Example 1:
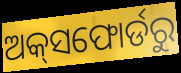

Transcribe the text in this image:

ଅକ୍‌ସଫୋର୍ଡରୁ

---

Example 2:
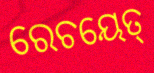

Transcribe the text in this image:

ରେଚୟେତ୍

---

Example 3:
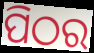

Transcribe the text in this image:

ପିଠର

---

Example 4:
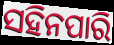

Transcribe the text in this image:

ସହିନପାରି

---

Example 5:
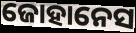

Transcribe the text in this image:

ଜୋହାନେସ